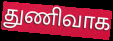
துணிவாக